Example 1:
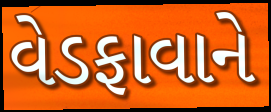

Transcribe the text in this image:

વેડફાવાને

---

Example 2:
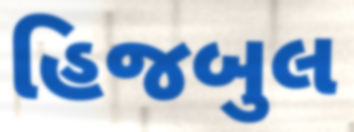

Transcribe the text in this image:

હિજબુલ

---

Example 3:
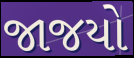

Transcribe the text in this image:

જાજયો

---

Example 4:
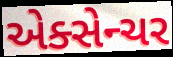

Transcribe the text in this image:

એક્સેન્ચર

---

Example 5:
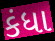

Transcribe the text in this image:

કંધા